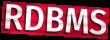
RDBMS